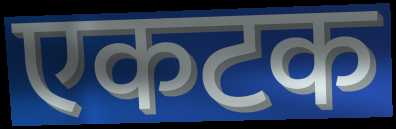
एकटक